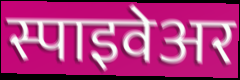
स्पाइवेअर